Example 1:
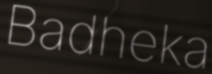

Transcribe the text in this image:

Badheka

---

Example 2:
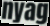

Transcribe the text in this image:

nyag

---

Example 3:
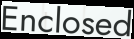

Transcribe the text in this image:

Enclosed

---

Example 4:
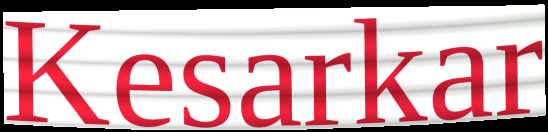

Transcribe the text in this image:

Kesarkar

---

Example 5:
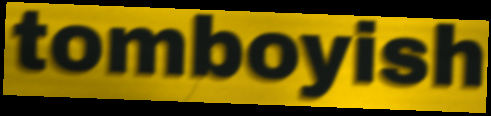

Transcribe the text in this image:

tomboyish